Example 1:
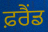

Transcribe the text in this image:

ਫ਼ਰੈਂਡ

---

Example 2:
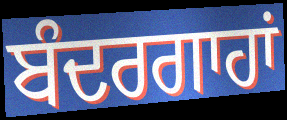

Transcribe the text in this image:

ਬੰਦਰਗਾਹਾਂ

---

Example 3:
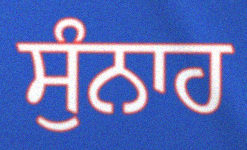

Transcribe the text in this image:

ਸੁੰਨਾਹ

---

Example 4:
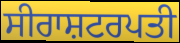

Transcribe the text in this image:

ਸੀਰਾਸ਼ਟਰਪਤੀ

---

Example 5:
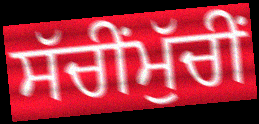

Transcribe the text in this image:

ਸੱਚੀਂਮੁੱਚੀਂ